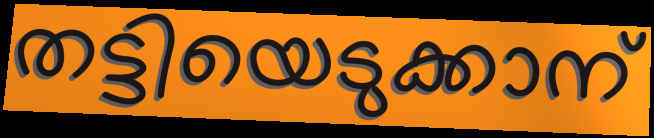
തട്ടിയെടുക്കാന്